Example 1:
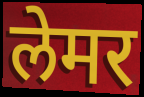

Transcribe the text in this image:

लेमर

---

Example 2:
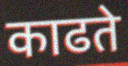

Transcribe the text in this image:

काढते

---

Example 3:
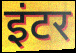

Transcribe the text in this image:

इंटर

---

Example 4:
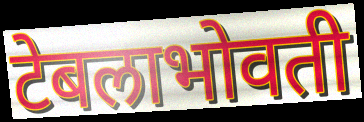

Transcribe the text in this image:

टेबलाभोवती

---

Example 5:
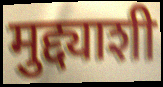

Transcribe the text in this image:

मुद्द्याशी